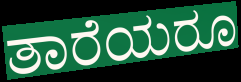
ತಾರೆಯರೂ